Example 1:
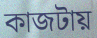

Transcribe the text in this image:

কাজটায়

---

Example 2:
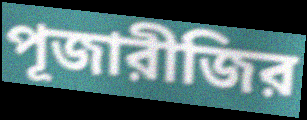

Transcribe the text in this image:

পূজারীজির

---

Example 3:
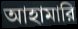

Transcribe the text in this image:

আহামারি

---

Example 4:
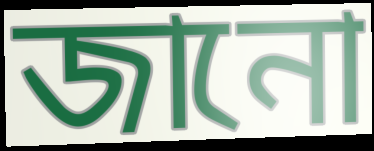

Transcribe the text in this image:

জানো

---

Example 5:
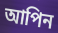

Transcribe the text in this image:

আপিন